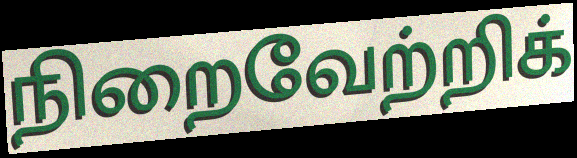
நிறைவேற்றிக்